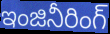
ఇంజినీరింగ్